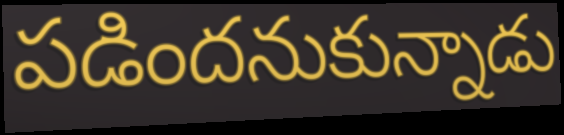
పడిందనుకున్నాడు